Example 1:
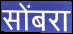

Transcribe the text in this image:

सोंबरा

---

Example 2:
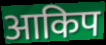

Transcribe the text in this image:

आकिप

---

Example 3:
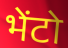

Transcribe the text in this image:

भेंटो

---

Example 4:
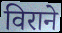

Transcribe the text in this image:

विराने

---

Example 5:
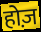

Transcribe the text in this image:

होज़